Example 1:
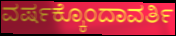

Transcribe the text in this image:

ವರ್ಷಕ್ಕೊಂದಾವರ್ತಿ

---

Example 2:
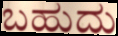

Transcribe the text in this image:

ಬಹುದು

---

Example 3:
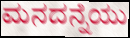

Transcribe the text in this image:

ಮನದನ್ನೆಯು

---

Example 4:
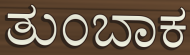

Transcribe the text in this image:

ತುಂಬಾಕ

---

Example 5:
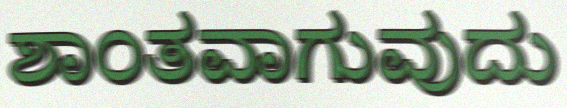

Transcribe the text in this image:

ಶಾಂತವಾಗುವುದು